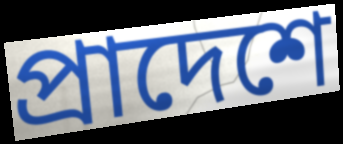
প্রাদেশে